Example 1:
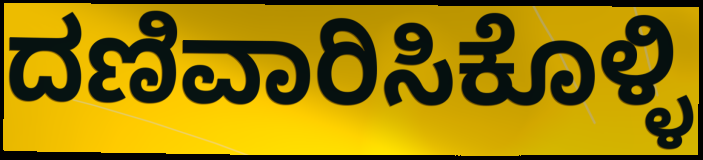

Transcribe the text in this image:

ದಣಿವಾರಿಸಿಕೊಳ್ಳಿ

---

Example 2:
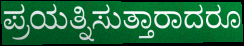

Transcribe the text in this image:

ಪ್ರಯತ್ನಿಸುತ್ತಾರಾದರೂ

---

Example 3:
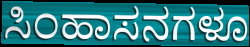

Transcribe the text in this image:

ಸಿಂಹಾಸನಗಳೂ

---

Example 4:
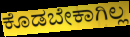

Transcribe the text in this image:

ಕೊಡಬೇಕಾಗಿಲ್ಲ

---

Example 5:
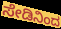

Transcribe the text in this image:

ಸೇಡಿನಿಂದ